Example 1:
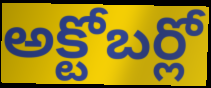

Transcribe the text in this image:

అక్టోబర్లో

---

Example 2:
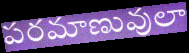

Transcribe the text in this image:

పరమాణువులా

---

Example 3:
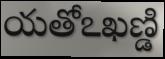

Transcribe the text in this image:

యతోఽఖణ్డి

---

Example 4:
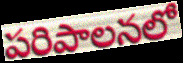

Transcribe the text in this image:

పరిపాలనలో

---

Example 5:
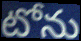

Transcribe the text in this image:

టోను